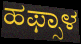
ಹಫ್ಸಾಳ